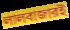
লালবাজারই